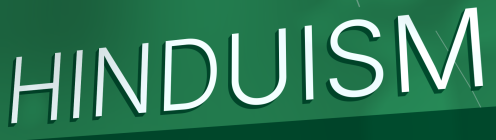
HINDUISM